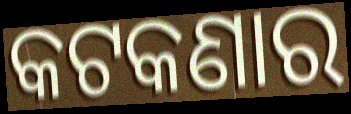
କଟକଣାର